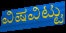
ವಿಷವಿಟ್ಟು